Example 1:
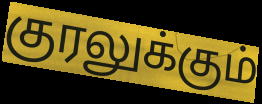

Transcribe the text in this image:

குரலுக்கும்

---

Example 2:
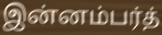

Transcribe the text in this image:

இன்னம்பர்த்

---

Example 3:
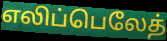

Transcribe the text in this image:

எலிப்பெலேத்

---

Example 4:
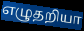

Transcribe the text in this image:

எழுதறியா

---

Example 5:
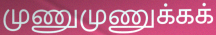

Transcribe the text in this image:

முணுமுணுக்கக்